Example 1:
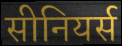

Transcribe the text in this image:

सीनियर्स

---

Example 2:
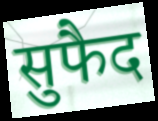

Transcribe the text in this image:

सुफैद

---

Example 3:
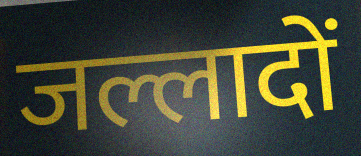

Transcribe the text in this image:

जल्लादों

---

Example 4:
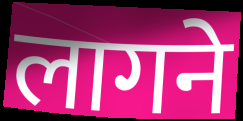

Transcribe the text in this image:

लागने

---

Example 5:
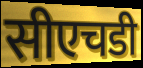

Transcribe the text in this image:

सीएचडी